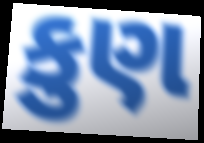
કુણ